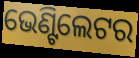
ଭେଣ୍ଟିଲେଟର